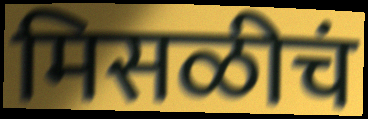
मिसळीचं